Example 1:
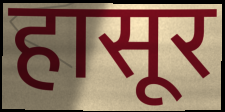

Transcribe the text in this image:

हासूर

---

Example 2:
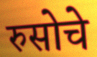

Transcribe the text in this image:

रुसोचे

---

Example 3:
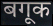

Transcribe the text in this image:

बगूक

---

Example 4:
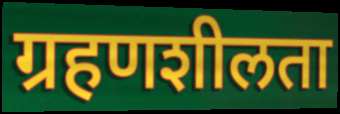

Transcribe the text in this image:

ग्रहणशीलता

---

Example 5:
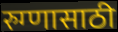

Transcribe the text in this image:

रुग्णासाठी